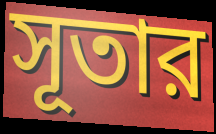
সূতার